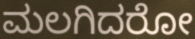
ಮಲಗಿದರೋ